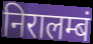
निरालम्बं